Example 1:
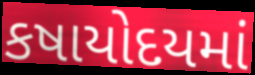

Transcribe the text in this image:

કષાયોદયમાં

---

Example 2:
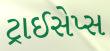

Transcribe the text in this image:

ટ્રાઈસેપ્સ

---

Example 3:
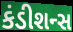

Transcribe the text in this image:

કંડીશન્સ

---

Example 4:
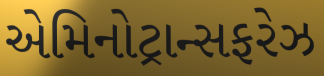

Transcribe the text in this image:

એમિનોટ્રાન્સફરેઝ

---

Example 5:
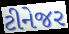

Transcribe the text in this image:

ટીનેજર